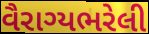
વૈરાગ્યભરેલી